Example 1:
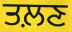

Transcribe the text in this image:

ਤਲ਼ਣ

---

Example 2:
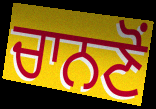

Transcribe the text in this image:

ਚਾਨਣੋਂ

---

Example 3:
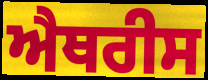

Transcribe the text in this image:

ਐਥਰੀਸ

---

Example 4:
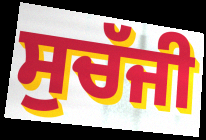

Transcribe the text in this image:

ਸੁਚੱਜੀ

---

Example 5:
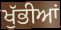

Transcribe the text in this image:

ਖੁੱਭੀਆਂ